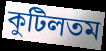
কুটিলতম